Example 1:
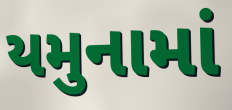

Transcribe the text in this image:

યમુનામાં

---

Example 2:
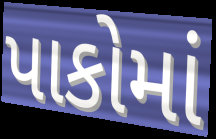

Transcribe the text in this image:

પાકોમાં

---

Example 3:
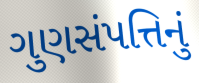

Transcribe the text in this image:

ગુણસંપત્તિનું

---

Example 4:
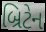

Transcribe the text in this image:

બ્રિટેન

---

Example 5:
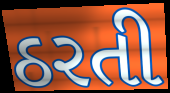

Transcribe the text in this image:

ઠરતી